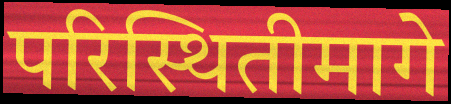
परिस्थितीमागे